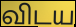
விடய